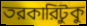
তরকারিটুকু